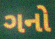
ગનો